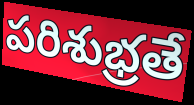
పరిశుభ్రతే